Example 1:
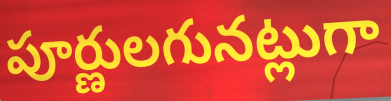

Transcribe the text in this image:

పూర్ణులగునట్లుగా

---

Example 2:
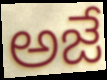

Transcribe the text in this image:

అజే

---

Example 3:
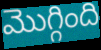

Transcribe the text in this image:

మొగ్గింది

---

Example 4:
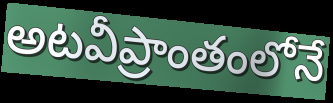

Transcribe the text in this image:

అటవీప్రాంతంలోనే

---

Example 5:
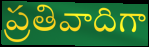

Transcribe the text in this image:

ప్రతివాదిగా